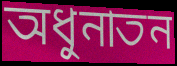
অধুনাতন